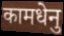
कामधेनु